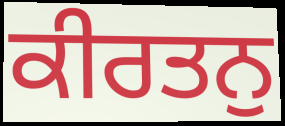
ਕੀਰਤਨੁ